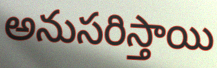
అనుసరిస్తాయి